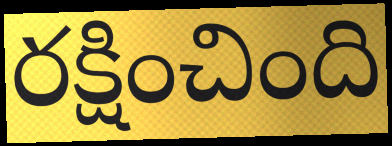
రక్షించింది